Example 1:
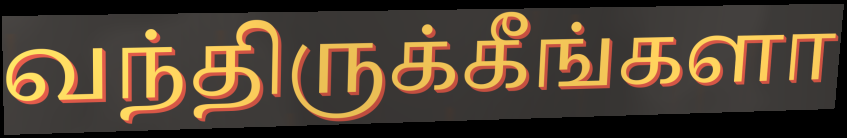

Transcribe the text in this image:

வந்திருக்கீங்களா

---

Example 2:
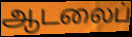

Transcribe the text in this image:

ஆடலைப்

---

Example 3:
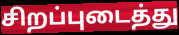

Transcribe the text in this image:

சிறப்புடைத்து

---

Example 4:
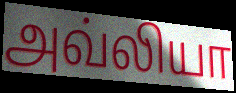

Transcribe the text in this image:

அவ்லியா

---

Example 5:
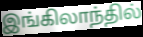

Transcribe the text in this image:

இங்கிலாந்தில்